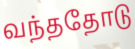
வந்ததோடு